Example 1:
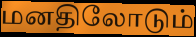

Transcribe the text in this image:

மனதிலோடும்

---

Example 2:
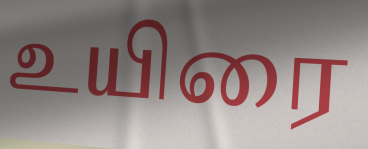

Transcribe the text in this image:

உயிரை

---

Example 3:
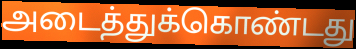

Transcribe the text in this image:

அடைத்துக்கொண்டது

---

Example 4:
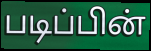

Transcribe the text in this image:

படிப்பின்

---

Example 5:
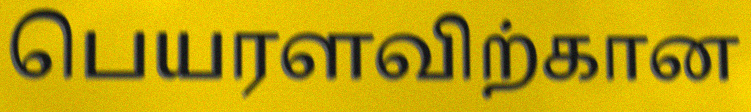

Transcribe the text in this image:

பெயரளவிற்கான